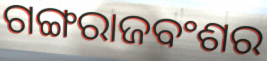
ଗଙ୍ଗରାଜବଂଶର